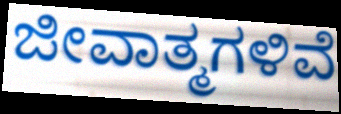
ಜೀವಾತ್ಮಗಳಿವೆ